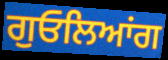
ਗੁਓਲਿਆਂਗ